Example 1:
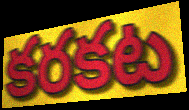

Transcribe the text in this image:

కరకట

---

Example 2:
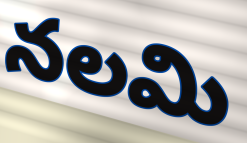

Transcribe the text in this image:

నలమి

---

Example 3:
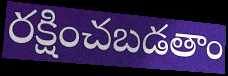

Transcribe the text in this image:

రక్షించబడతాం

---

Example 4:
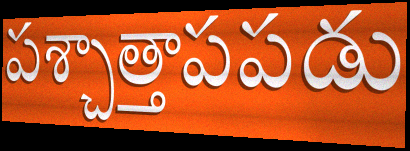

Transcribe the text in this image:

పశ్చాత్తాపపడు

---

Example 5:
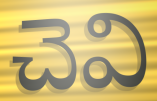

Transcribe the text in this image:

చెవి